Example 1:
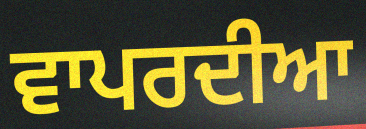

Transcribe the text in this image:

ਵਾਪਰਦੀਆ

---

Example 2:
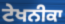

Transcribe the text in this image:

ਟੇਖਨੀਕਾ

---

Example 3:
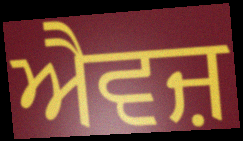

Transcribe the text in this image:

ਐਵਜ਼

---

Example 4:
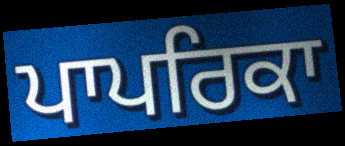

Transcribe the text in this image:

ਪਾਪਰਿਕਾ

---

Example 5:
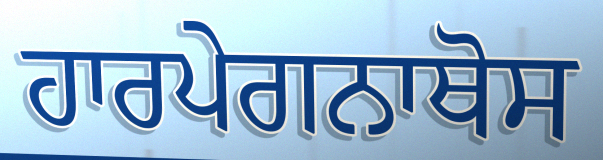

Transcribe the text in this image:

ਹਾਰਪੇਗਨਾਥੋਸ